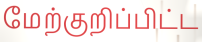
மேற்குறிப்பிட்ட